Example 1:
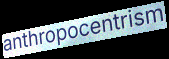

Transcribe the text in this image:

anthropocentrism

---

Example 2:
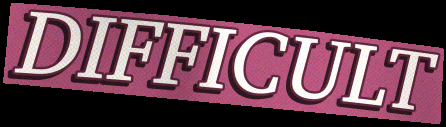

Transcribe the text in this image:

DIFFICULT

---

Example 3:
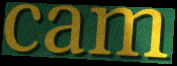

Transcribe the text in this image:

cam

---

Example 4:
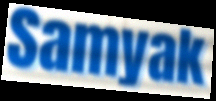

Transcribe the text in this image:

Samyak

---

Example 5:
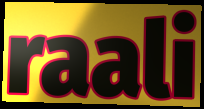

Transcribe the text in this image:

raali